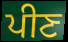
ਪੀਣ